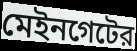
মেইনগেটের